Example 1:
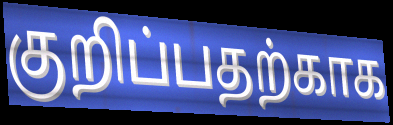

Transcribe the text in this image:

குறிப்பதற்காக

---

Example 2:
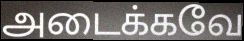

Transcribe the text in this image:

அடைக்கவே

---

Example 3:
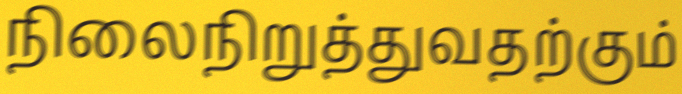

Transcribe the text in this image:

நிலைநிறுத்துவதற்கும்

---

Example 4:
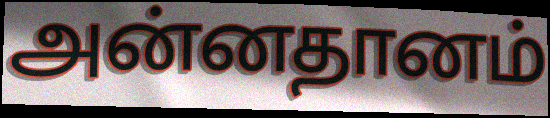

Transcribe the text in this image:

அன்னதானம்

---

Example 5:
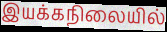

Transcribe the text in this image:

இயக்கநிலையில்